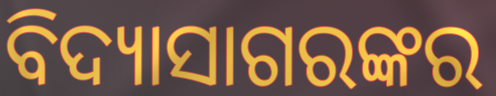
ବିଦ୍ୟାସାଗରଙ୍କର